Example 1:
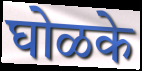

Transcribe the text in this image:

घोळके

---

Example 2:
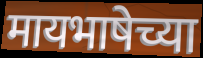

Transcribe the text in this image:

मायभाषेच्या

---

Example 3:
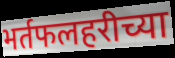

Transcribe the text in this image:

भर्तफलहरीच्या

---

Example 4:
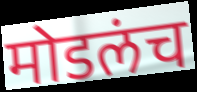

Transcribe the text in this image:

मोडलंच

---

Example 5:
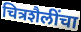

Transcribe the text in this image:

चित्रशैलींचा